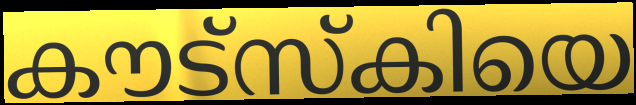
കൗട്സ്കിയെ